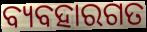
ବ୍ୟବହାରଗତ